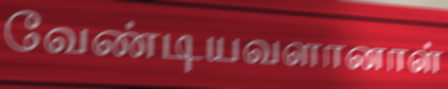
வேண்டியவளானாள்